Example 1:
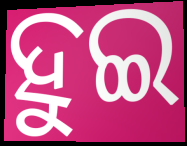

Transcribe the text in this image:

ହୁଇ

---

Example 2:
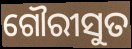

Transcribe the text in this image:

ଗୌରୀସୁତ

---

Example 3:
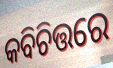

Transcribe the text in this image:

କବିଚିତ୍ତରେ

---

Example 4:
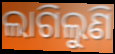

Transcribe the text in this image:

ଲାଗିଲୁଣି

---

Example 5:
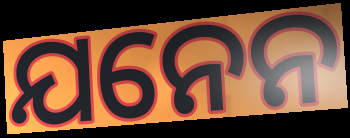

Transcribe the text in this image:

ଯନେନ